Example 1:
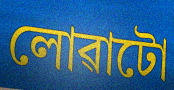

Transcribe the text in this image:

লোৱাটো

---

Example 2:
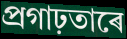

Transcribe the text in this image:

প্ৰগাঢ়তাৰে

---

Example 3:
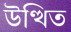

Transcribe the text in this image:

উত্থিত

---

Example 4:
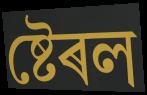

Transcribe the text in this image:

ষ্টেৰল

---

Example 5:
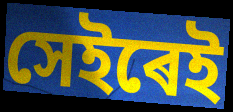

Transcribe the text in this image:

সেইৰেই